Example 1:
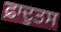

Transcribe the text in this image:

ਫ਼ਾਦੁਤਸ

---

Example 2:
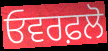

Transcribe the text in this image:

ਓਵਰਫ਼ਲੋ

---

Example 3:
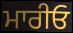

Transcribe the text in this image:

ਮਾਰੀਓ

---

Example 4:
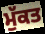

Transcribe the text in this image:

ਮੁੱਕਤ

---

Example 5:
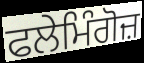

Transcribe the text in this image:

ਫਲੇਮਿੰਗੋਜ਼